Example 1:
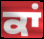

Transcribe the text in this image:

ਕਾਂ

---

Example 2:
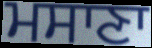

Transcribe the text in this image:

ਮਸਾਣਾ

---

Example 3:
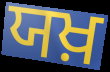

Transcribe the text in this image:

ਯਖ਼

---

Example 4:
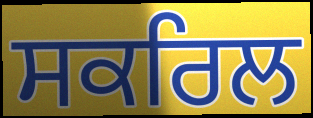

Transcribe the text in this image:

ਸਕਰਿਲ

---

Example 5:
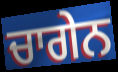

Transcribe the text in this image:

ਚਾਗੇਨ